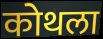
कोथला